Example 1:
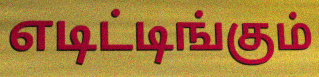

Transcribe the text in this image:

எடிட்டிங்கும்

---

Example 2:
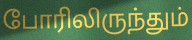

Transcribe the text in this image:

போரிலிருந்தும்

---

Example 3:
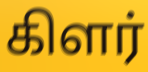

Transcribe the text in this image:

கிளர்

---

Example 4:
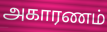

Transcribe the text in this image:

அகாரணம்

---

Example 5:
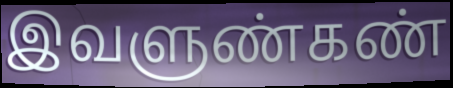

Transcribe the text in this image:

இவளுண்கண்